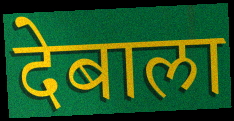
देबाला